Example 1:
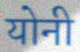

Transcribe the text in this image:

योनी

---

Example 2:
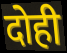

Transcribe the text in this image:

दोही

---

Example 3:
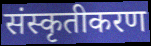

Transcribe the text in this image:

संस्कृतीकरण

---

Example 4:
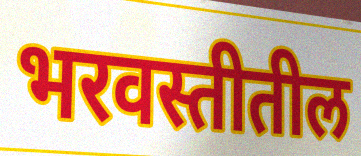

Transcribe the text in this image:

भरवस्तीतील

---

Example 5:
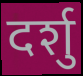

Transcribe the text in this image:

दर्शु